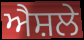
ਐਸ਼ਲੇ